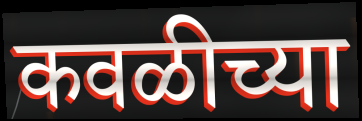
कवळीच्या